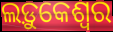
ଲଡ଼ୁକେଶ୍ୱର